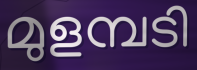
മുളമ്പടി